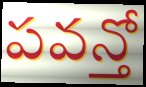
పవన్తో